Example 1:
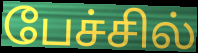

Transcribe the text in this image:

பேச்சில்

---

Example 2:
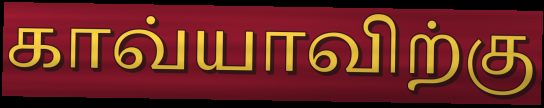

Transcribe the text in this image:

காவ்யாவிற்கு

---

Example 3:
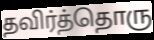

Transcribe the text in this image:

தவிர்த்தொரு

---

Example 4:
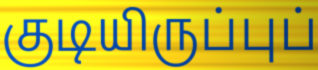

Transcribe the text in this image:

குடியிருப்புப்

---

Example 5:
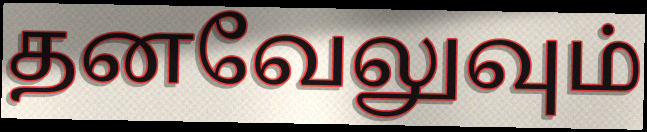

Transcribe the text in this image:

தனவேலுவும்